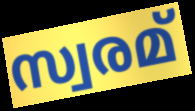
സ്വരമ്